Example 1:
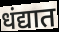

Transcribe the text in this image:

धंद्यात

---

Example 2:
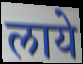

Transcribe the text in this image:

लाये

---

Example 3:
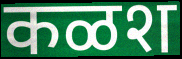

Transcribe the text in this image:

कळश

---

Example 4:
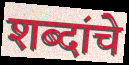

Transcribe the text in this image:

शब्दांचे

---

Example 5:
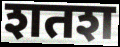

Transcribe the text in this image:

शतश